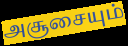
அசூசையும்